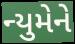
ન્યુમેને